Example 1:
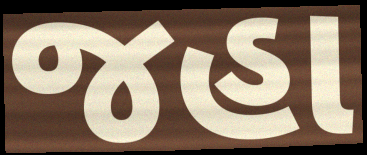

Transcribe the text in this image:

જહા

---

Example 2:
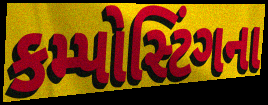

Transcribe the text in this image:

કમ્પોસ્ટિંગના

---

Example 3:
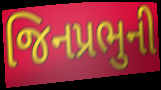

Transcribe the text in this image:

જિનપ્રભુની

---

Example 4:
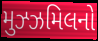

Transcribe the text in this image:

મુઝ્ઝમિલનો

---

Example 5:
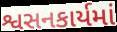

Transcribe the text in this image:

શ્વસનકાર્યમાં